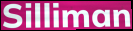
Silliman